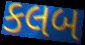
કલબ